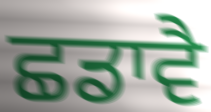
ਛਡਾਵੈ